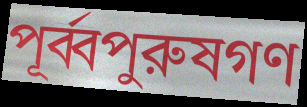
পূর্ব্বপুরুষগণ